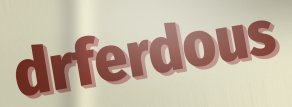
drferdous